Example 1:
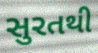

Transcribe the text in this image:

સુરતથી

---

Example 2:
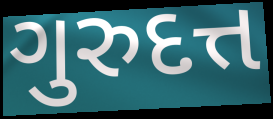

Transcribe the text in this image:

ગુરુદત્ત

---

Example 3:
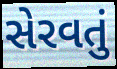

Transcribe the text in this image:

સેરવતું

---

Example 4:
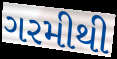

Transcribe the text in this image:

ગરમીથી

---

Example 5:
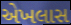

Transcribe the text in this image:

એખલાસ